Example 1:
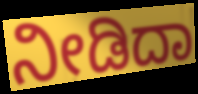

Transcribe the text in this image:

ನೀಡಿದಾ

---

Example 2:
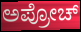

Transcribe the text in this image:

ಅಪ್ರೋಚ್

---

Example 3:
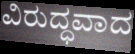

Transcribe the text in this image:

ವಿರುದ್ಧವಾದ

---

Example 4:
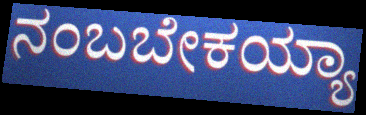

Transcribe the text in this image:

ನಂಬಬೇಕಯ್ಯಾ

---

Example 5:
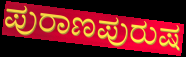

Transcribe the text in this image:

ಪುರಾಣಪುರುಷ